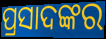
ପ୍ରସାଦଙ୍କର